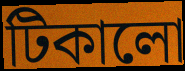
টিকালো